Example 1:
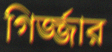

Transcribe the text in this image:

গির্জ্জার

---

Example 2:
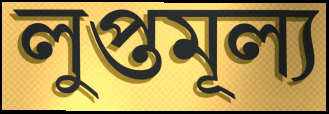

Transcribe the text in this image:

লুপ্তমূল্য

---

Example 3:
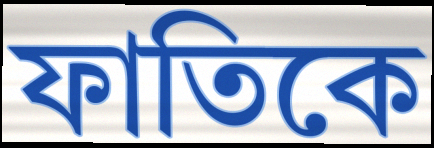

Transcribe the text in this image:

ফাতিকে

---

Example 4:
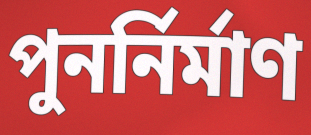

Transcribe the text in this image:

পুনর্নির্মাণ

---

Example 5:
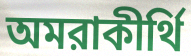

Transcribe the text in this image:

অমরাকীর্থি